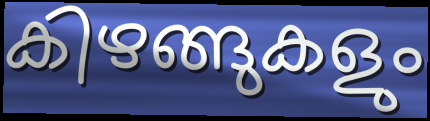
കിഴങ്ങുകളും